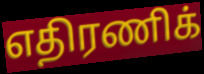
எதிரணிக்